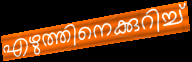
എഴുത്തിനെക്കുറിച്ച്